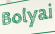
Bolyai